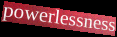
powerlessness